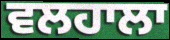
ਵਲਹਾਲਾ